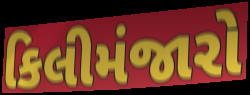
કિલીમંજારો